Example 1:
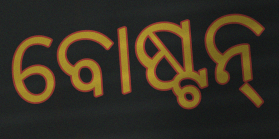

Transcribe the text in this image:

ବୋଷ୍ଟନ୍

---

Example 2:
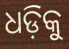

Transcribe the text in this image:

ଧଡ଼ିକୁ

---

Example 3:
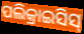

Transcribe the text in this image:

ପଲିକ୍ରାଇସିସ୍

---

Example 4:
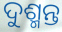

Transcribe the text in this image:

ଦୁଶ୍ମନ୍ତ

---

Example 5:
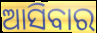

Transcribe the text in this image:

ଆସିବାର